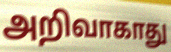
அறிவாகாது